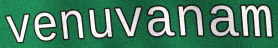
venuvanam